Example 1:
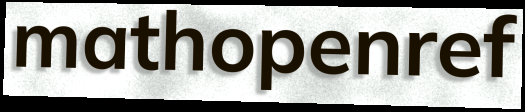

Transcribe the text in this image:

mathopenref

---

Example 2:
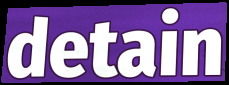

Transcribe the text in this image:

detain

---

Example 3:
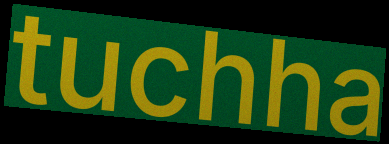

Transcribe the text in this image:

tuchha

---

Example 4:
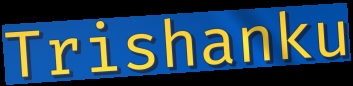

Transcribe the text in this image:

Trishanku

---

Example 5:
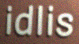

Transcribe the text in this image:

idlis